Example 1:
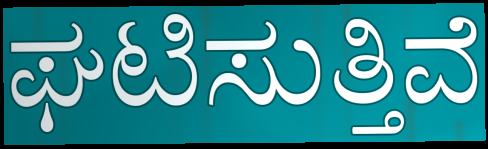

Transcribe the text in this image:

ಘಟಿಸುತ್ತಿವೆ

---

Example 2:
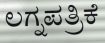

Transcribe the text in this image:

ಲಗ್ನಪತ್ರಿಕೆ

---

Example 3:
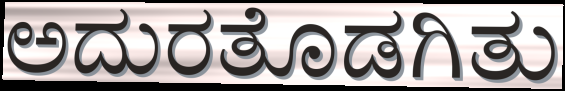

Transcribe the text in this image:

ಅದುರತೊಡಗಿತು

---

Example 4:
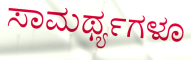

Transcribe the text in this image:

ಸಾಮರ್ಥ್ಯಗಳೂ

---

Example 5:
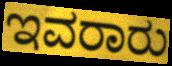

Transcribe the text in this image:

ಇವರಾರು